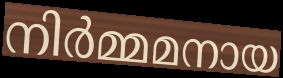
നിർമ്മമനായ